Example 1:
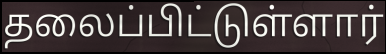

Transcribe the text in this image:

தலைப்பிட்டுள்ளார்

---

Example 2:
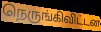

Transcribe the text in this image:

நெருங்கிவிட்டன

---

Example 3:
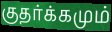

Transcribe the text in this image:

குதர்க்கமும்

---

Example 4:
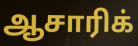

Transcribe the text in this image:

ஆசாரிக்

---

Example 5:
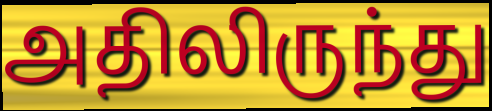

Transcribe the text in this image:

அதிலிருந்து